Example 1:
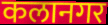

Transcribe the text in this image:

कलानगर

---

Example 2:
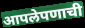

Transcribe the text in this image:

आपलेपणाची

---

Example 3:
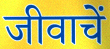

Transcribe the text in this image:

जीवाचें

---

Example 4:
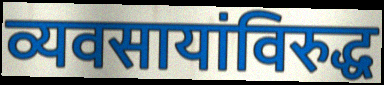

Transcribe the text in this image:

व्यवसायांविरुद्ध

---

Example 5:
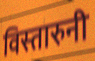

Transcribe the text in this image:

विस्तारुनी